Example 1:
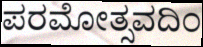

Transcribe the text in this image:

ಪರಮೋತ್ಸವದಿಂ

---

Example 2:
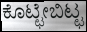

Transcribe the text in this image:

ಕೊಟ್ಟೇಬಿಟ್ಟ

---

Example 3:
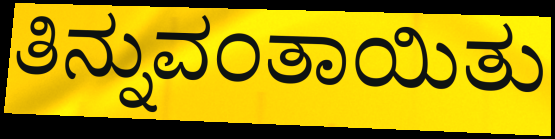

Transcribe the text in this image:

ತಿನ್ನುವಂತಾಯಿತು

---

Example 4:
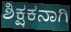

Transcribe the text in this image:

ಶಿಕ್ಷಕನಾಗಿ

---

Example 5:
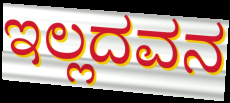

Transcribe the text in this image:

ಇಲ್ಲದವನ